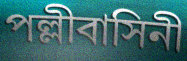
পল্লীবাসিনী